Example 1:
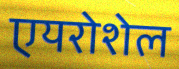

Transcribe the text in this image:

एयरोशेल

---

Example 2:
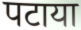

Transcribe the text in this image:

पटाया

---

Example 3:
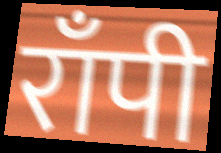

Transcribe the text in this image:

राँपी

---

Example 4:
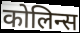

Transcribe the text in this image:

कोलिन्स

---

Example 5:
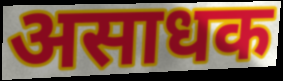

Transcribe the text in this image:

असाधक